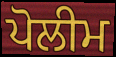
ਪੋਲੀਮ